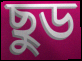
ছুড